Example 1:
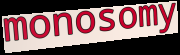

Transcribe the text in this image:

monosomy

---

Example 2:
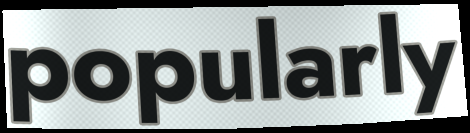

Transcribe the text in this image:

popularly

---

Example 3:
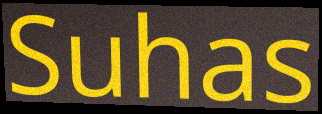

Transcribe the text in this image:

Suhas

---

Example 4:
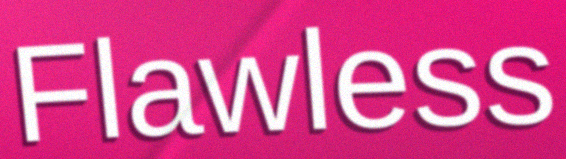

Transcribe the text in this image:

Flawless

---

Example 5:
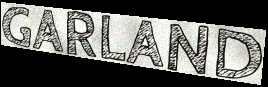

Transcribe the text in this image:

GARLAND